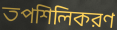
তপশিলিকরণ